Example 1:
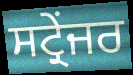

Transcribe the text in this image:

ਸਟ੍ਰੇਂਜਰ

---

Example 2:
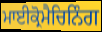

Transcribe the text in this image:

ਮਾਈਕ੍ਰੋਮੈਚਿਨਿੰਗ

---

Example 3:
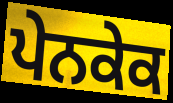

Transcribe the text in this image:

ਪੇਨਕੇਕ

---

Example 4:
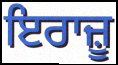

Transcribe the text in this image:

ਇਰਾਜ਼ੂ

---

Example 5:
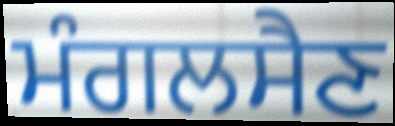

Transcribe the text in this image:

ਮੰਗਲਸੈਣ